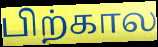
பிற்கால